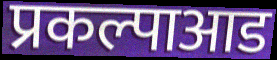
प्रकल्पाआड